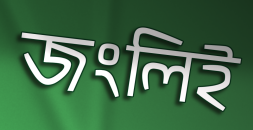
জংলিই